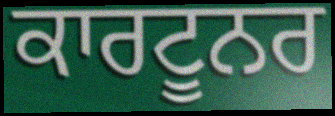
ਕਾਰਟੂਨਰ